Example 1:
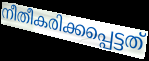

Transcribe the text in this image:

നീതീകരിക്കപ്പെട്ടത്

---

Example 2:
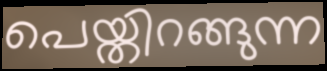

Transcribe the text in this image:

പെയ്തിറങ്ങുന്ന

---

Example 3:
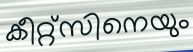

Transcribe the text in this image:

കീറ്റ്സിനെയും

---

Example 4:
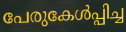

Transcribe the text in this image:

പേരുകേൾപ്പിച്ച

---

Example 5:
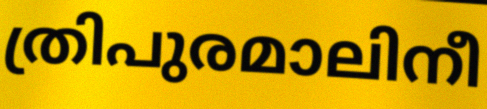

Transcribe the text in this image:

ത്രിപുരമാലിനീ